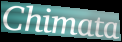
Chimata